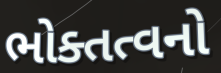
ભોક્તત્વનો